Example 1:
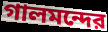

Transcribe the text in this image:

গালমন্দের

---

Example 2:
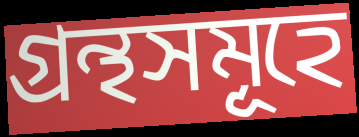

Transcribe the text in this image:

গ্রন্থসমূহে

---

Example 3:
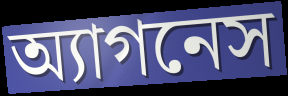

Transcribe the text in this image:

অ্যাগনেস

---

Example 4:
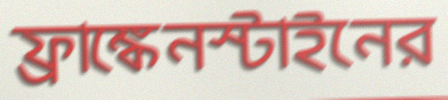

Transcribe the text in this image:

ফ্রাঙ্কেনস্টাইনের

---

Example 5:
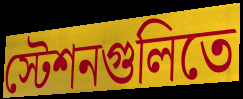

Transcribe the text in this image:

স্টেশনগুলিতে